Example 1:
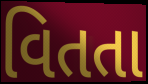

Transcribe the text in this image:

વિતતા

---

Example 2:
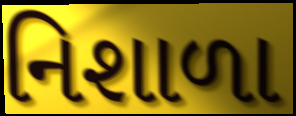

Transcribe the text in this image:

નિશાળા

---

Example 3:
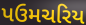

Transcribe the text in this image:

પઉમચરિય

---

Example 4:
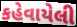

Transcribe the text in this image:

કહેવાયેલી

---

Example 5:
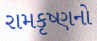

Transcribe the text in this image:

રામકૃષ્ણનો